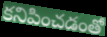
కనిపించడంతో